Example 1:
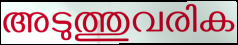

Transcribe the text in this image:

അടുത്തുവരിക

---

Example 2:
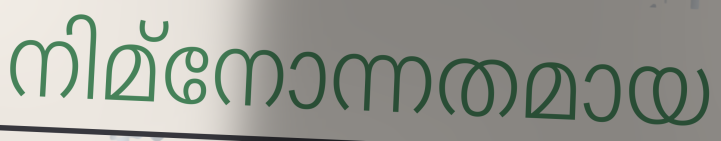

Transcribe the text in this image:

നിമ്നോന്നതമായ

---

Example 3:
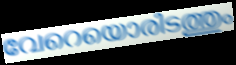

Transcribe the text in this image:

വേറെയൊരിടത്തും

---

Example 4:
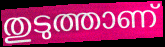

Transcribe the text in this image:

തുടുത്താണ്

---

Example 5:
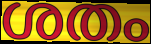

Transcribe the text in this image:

ശതം